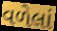
વળેલાં